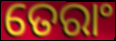
ତେରାଂ